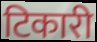
टिकारी